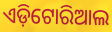
ଏଡ଼ିଟୋରିଆଲ